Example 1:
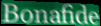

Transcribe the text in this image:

Bonafide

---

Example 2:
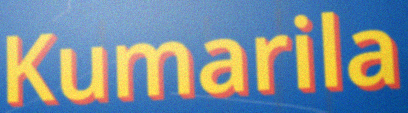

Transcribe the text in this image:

Kumarila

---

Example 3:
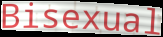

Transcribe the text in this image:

Bisexual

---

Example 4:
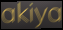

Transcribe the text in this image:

akiya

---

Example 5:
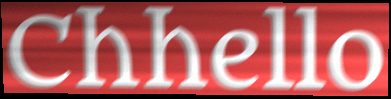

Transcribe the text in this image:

Chhello